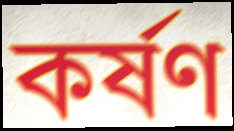
কৰ্ষণ